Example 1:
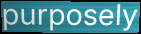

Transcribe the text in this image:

purposely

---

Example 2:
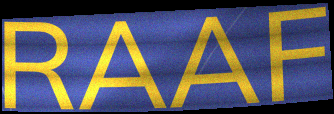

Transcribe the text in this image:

RAAF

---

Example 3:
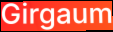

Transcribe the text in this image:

Girgaum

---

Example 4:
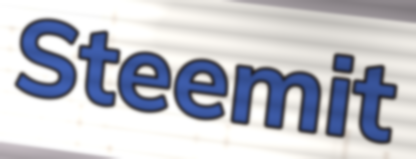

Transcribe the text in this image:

Steemit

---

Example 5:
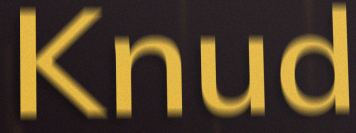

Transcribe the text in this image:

Knud